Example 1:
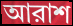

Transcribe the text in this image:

আরাশ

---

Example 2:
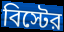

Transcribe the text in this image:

বিস্টের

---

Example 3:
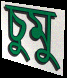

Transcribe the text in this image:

চুমু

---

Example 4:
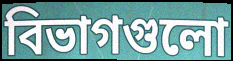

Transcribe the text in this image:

বিভাগগুলো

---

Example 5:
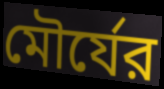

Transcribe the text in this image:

মৌর্যের